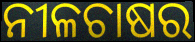
ନୀଳଚାଷର